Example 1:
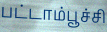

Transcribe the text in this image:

பட்டாம்பூச்சி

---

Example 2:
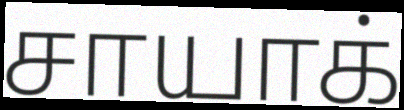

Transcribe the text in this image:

சாயாக்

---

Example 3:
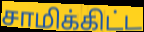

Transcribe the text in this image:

சாமிக்கிட்ட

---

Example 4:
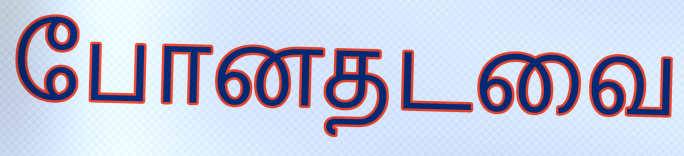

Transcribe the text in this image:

போனதடவை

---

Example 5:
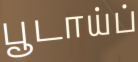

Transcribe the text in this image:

பூடாய்ப்